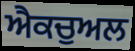
ਐਕਚੁਅਲ